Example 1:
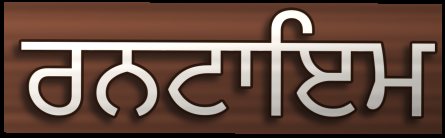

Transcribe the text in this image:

ਰਨਟਾਇਮ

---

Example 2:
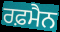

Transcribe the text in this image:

ਰਫ਼ਮੈਨ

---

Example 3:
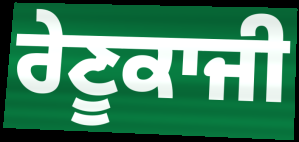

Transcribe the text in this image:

ਰੇਣੂਕਾਜੀ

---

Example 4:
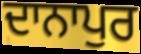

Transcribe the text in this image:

ਦਾਨਾਪੁਰ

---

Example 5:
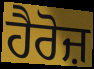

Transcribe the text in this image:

ਹੈਰੋਜ਼